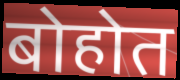
बोहोत